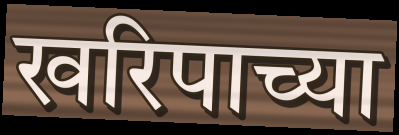
खरिपाच्या